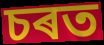
চৰত